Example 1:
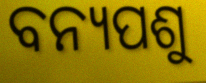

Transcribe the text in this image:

ବନ୍ୟପଶୁ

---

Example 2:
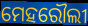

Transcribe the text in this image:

ମେହରୌଲୀ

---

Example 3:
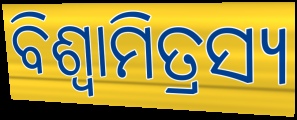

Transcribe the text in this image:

ବିଶ୍ଵାମିତ୍ରସ୍ୟ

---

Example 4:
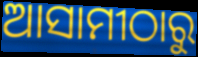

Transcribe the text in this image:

ଆସାମୀଠାରୁ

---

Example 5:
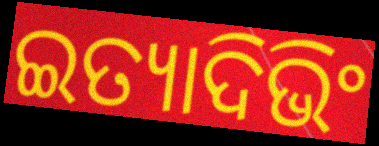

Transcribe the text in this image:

ଇତ୍ୟାଦିଭିଂ